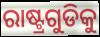
ରାଷ୍ଟ୍ରଗୁଡିକୁ